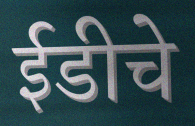
ईडीचे